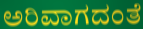
ಅರಿವಾಗದಂತೆ